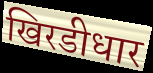
खिरडीधार